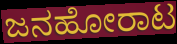
ಜನಹೋರಾಟ